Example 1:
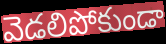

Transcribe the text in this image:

వెడలిపోకుండా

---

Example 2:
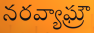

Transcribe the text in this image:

నరవ్యాఘ్రౌ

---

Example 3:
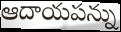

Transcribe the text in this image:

ఆదాయపన్ను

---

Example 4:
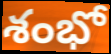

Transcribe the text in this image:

శంభో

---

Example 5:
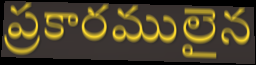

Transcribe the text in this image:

ప్రకారములైన